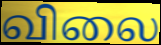
விலை